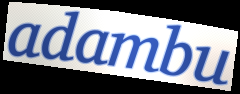
adambu